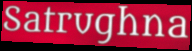
Satrughna